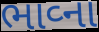
ભાવ્ના